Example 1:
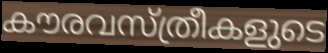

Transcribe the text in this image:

കൗരവസ്ത്രീകളുടെ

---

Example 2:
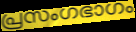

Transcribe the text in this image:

പ്രസംഗഭാഗം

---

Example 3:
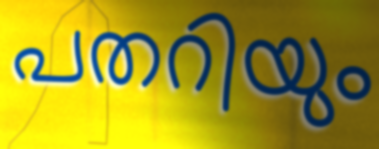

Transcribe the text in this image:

പതറിയും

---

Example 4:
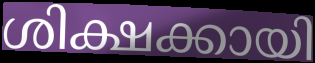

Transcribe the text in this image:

ശിക്ഷക്കായി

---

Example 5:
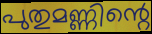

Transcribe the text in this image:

പുതുമണ്ണിന്റെ